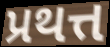
પ્રથત્ત